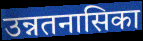
उन्नतनासिका